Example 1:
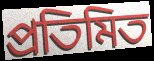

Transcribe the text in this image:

প্রতিমিত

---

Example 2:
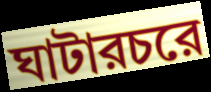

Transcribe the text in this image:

ঘাটারচরে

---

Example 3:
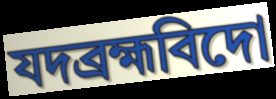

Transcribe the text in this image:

যদব্রহ্মবিদো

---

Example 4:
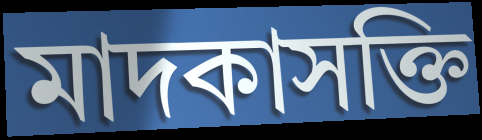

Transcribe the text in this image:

মাদকাসক্তি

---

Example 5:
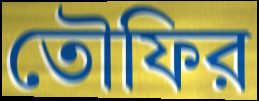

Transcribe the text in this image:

তৌফির